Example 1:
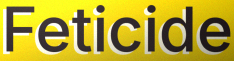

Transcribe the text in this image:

Feticide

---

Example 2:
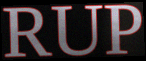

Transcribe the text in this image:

RUP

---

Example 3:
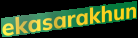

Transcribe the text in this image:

ekasarakhun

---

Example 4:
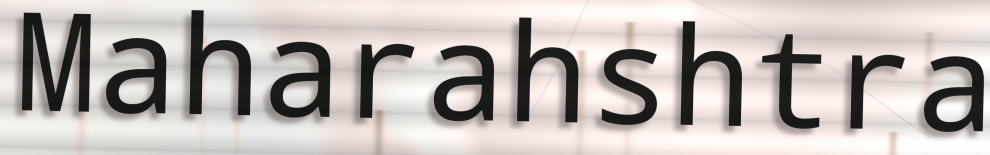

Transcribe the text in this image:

Maharahshtra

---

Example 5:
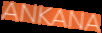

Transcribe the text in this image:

ANKANA